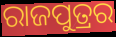
ରାଜପୁତ୍ରର